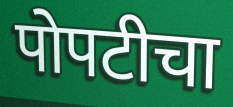
पोपटीचा